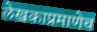
लेखकाप्रमाणेच